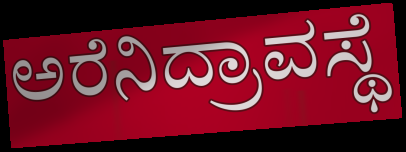
ಅರೆನಿದ್ರಾವಸ್ಥೆ